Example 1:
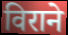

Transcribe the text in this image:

विराने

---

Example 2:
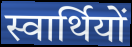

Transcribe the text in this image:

स्वार्थियों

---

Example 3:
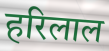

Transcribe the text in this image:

हरिलाल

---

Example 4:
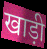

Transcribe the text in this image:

खाड़ी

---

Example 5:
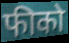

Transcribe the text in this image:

फीको